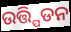
ଉତ୍ତ୍ପିଡନ